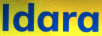
Idara